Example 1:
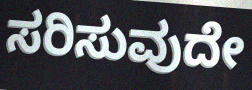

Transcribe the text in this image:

ಸರಿಸುವುದೇ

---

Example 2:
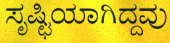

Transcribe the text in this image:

ಸೃಷ್ಟಿಯಾಗಿದ್ದವು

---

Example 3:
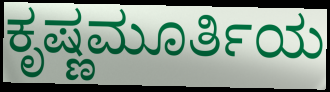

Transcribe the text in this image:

ಕೃಷ್ಣಮೂರ್ತಿಯ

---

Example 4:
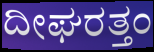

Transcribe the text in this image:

ದೀಘರತ್ತಂ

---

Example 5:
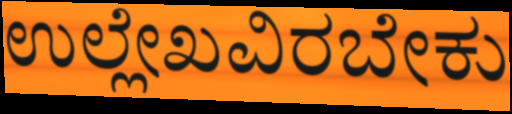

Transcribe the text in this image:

ಉಲ್ಲೇಖವಿರಬೇಕು